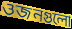
ওজনগুলো